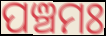
ପଞ୍ଚମଃ